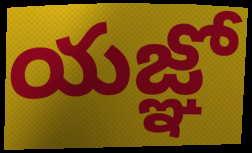
యజ్ఞో